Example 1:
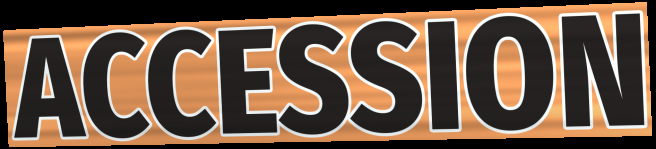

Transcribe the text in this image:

ACCESSION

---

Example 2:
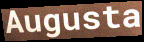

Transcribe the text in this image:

Augusta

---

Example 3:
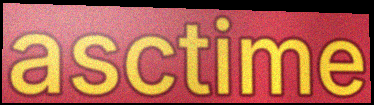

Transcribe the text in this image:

asctime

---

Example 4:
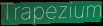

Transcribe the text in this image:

Trapezium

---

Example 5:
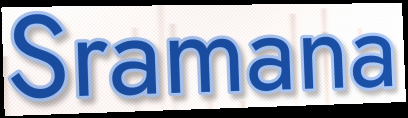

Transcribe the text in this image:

Sramana